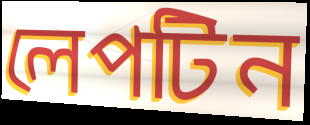
লেপটিন